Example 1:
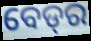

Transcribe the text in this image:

ବେଡ୍‍ର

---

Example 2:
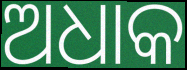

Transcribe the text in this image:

ଅଧାକ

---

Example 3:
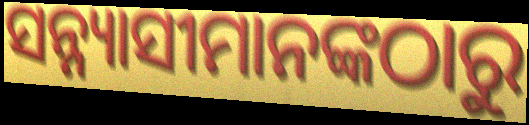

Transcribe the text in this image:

ସନ୍ନ୍ୟାସୀମାନଙ୍କଠାରୁ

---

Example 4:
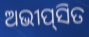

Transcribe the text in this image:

ଅଭୀପ୍‌ସିତ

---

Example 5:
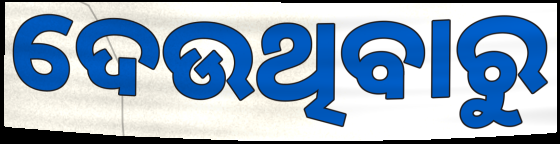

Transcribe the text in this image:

ଦେଉଥିବାରୁ